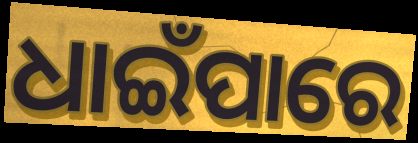
ଧାଇଁପାରେ